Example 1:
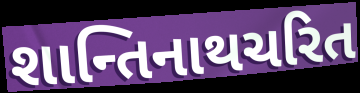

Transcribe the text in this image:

શાન્તિનાથચરિત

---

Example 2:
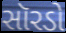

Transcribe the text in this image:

સૉરડો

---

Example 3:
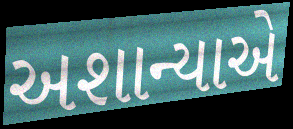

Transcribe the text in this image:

અશાન્યાએ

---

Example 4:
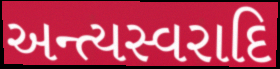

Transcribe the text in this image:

અન્ત્યસ્વરાદિ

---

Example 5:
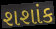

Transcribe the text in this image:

શશાંક